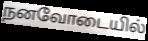
நனவோடையில்